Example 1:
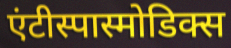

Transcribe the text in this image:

एंटीस्पास्मोडिक्स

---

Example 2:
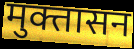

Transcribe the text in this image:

मुक्तासन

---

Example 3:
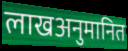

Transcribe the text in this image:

लाखअनुमानित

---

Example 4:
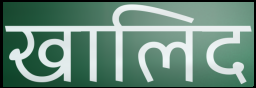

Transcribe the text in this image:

खालिद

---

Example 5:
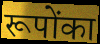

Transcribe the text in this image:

रूपोंका